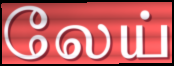
லேய்